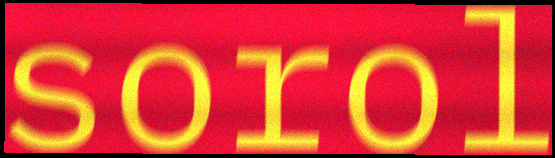
sorol